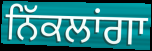
ਨਿੱਕਲਾਂਗਾ